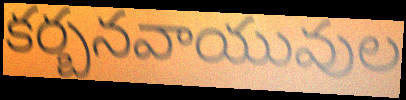
కర్బనవాయువుల